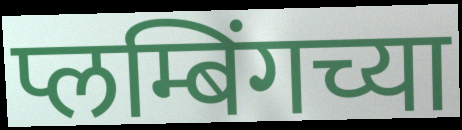
प्लम्बिंगच्या